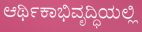
ಆರ್ಥಿಕಾಭಿವೃದ್ಧಿಯಲ್ಲಿ